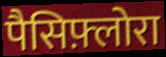
पैसिफ़्लोरा